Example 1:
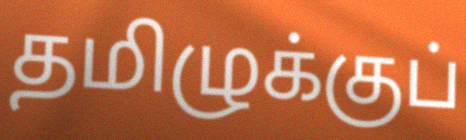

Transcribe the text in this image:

தமிழுக்குப்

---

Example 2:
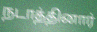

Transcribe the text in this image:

நடாத்தினார்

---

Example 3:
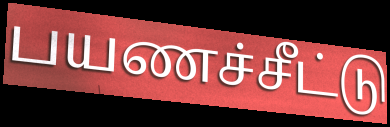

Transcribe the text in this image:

பயணச்சீட்டு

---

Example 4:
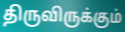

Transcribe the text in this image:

திருவிருக்கும்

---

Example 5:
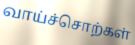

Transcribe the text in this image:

வாய்ச்சொற்கள்